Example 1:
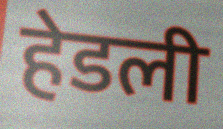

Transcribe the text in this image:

हेडली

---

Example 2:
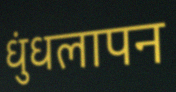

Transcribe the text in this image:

धुंधलापन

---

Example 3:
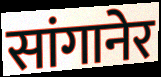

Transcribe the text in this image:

सांगानेर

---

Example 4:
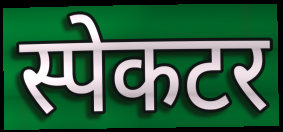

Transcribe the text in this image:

स्पेकटर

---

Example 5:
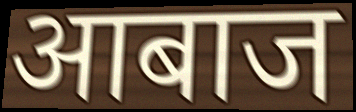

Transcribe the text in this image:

आबाज